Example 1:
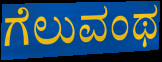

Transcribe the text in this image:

ಗೆಲುವಂಥ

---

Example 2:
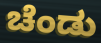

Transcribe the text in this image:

ಚೆಂಡು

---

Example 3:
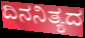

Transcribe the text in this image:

ದಿನನಿತ್ಯದ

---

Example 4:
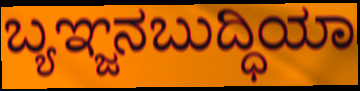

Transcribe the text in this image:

ಬ್ಯಞ್ಜನಬುದ್ಧಿಯಾ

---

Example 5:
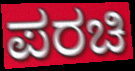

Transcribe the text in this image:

ಪರಚಿ